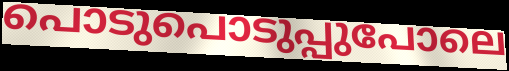
പൊടുപൊടുപ്പുപോലെ